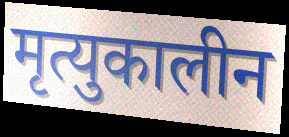
मृत्युकालीन